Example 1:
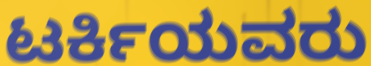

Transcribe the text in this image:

ಟರ್ಕಿಯವರು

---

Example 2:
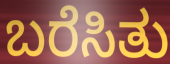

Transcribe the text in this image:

ಬರೆಸಿತು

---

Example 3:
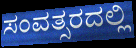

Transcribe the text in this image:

ಸಂವತ್ಸರದಲ್ಲಿ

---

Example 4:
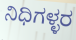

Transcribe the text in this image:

ನಿಧಿಗಳ್ಳರ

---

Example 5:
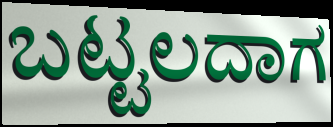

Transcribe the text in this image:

ಬಟ್ಟಲದಾಗ